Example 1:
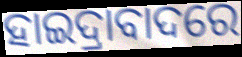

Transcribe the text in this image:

ହାଇଦ୍ରାବାଦରେ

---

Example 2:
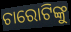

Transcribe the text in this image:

ଚାରୋଟିଙ୍କୁ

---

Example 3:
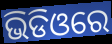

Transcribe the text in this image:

ଭିଡିଓରେ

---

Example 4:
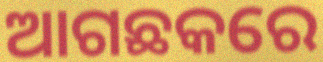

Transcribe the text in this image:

ଆଗଛକରେ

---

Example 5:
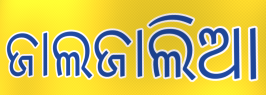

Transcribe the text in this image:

ଜାଲଜାଲିଆ